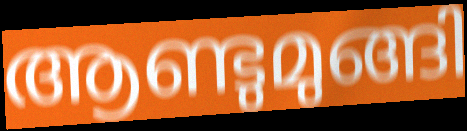
ആണ്ടുമുങ്ങി